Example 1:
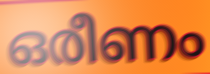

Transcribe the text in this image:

ഒരീണം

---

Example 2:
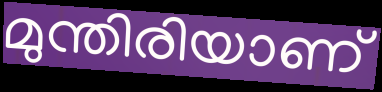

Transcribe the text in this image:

മുന്തിരിയാണ്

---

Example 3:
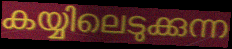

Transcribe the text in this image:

കയ്യിലെടുക്കുന്ന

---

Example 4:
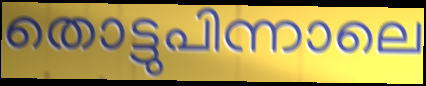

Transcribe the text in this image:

തൊട്ടുപിന്നാലെ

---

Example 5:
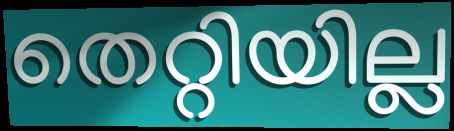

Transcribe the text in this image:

തെറ്റിയില്ല